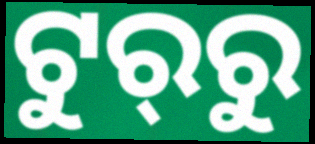
ଟୁର୍‍ରୁ